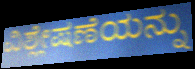
ವಿಶ್ಲೇಷಣೆಯನ್ನು